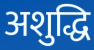
अशुद्धि